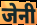
जेनी